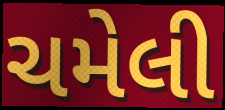
ચમેલી